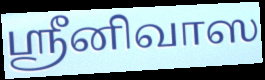
ஸ்ரீனிவாஸ